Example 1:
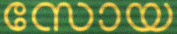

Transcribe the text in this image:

സോയ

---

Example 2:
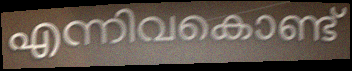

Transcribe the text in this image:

എന്നിവകൊണ്ട്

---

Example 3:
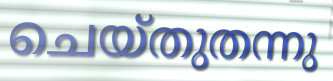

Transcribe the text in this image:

ചെയ്തുതന്നു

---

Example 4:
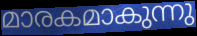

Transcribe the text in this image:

മാരകമാകുന്നു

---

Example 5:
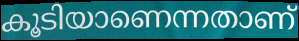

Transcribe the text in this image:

കൂടിയാണെന്നതാണ്